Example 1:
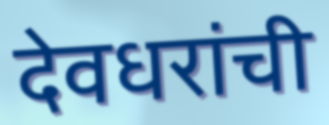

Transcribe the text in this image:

देवधरांची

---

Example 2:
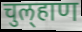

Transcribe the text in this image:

चुल्हाण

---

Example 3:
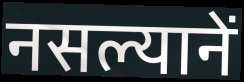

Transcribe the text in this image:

नसल्यानें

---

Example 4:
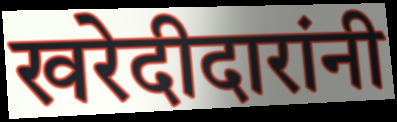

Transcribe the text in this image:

खरेदीदारांनी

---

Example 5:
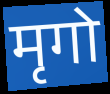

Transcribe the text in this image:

मृगो